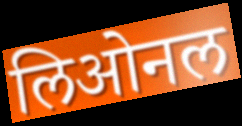
लिओनल